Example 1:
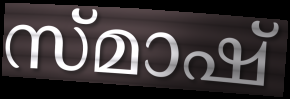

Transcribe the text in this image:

സ്മാഷ്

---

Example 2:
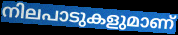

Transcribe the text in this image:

നിലപാടുകളുമാണ്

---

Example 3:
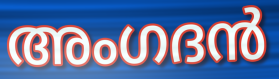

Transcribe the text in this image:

അംഗദൻ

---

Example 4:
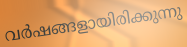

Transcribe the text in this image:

വർഷങ്ങളായിരിക്കുന്നു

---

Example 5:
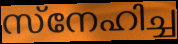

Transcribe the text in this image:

സ്‌നേഹിച്ച